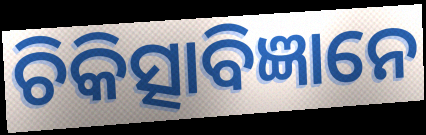
ଚିକିତ୍ସାବିଜ୍ଞାନେ